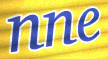
nne